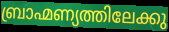
ബ്രാഹ്മണ്യത്തിലേക്കു